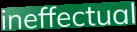
ineffectual